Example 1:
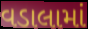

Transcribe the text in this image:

વડાલામાં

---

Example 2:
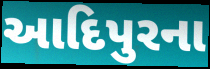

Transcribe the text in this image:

આદિપુરના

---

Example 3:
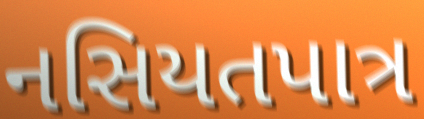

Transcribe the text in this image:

નસિયતપાત્ર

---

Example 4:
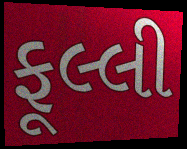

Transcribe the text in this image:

ફૂલ્લી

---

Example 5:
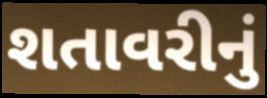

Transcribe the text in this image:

શતાવરીનું